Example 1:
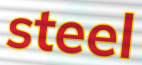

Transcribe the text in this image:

steel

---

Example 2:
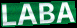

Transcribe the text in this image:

LABA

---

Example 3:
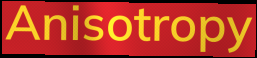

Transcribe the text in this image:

Anisotropy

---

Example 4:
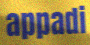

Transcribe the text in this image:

appadi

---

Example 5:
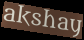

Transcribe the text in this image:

akshay